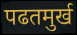
पढतमुर्ख